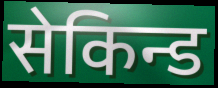
सेकिन्ड